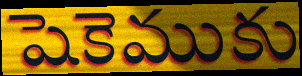
షెకెముకు